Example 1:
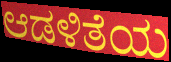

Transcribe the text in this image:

ಆಡಳಿತೆಯ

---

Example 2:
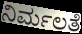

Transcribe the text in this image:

ನಿರ್ಮಲತೆ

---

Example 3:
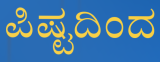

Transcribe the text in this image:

ಪಿಷ್ಟದಿಂದ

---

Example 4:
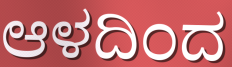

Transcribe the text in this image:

ಆಳದಿಂದ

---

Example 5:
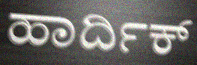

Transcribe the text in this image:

ಹಾರ್ದಿಕ್